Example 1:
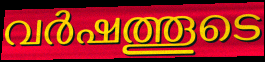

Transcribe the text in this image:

വർഷത്തൂടെ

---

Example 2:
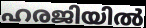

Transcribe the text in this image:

ഹരജിയിൽ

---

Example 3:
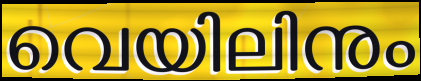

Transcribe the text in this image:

വെയിലിനും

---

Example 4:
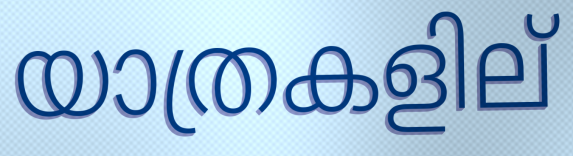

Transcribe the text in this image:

യാത്രകളില്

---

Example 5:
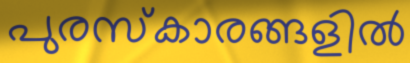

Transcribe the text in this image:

പുരസ്കാരങ്ങളിൽ